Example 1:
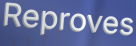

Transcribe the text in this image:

Reproves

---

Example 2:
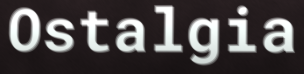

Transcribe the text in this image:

Ostalgia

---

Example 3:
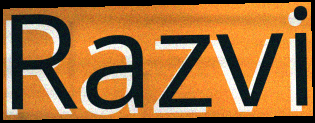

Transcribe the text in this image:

Razvi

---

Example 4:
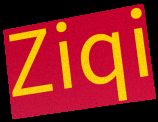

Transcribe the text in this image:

Ziqi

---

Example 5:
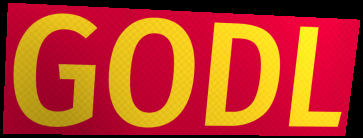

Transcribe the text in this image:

GODL